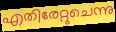
എതിരേറ്റുചെന്നു